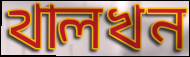
থালখন